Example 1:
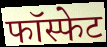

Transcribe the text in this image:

फॉस्फेट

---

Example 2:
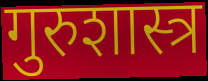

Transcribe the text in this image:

गुरुशास्त्र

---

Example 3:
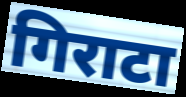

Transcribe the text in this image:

गिराटा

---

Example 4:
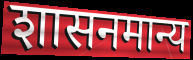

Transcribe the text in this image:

शासनमान्य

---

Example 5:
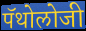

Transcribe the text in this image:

पॅथोलोजी